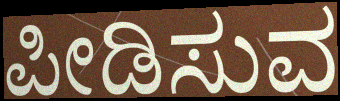
ಪೀಡಿಸುವ